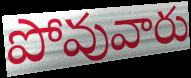
పోవువారు